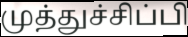
முத்துச்சிப்பி